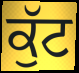
ਕੁੱਟ